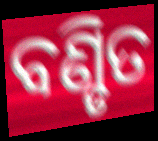
ବଣ୍ଡିତ